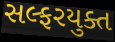
સલ્ફરયુક્ત